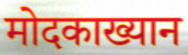
मोदकाख्यान